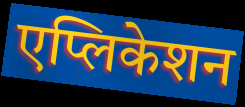
एप्लिकेशन